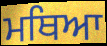
ਮਥਿਆ